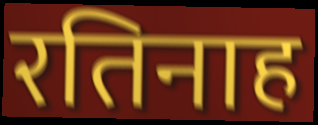
रतिनाह